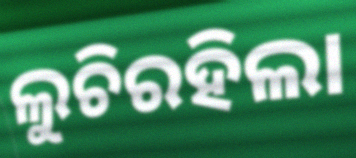
ଲୁଚିରହିଲା